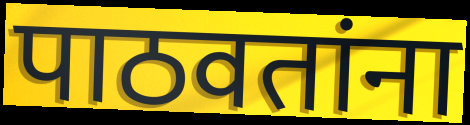
पाठवतांना